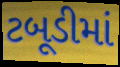
ટબૂડીમાં